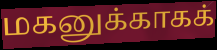
மகனுக்காகக்